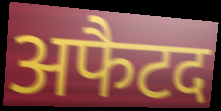
अफैटद